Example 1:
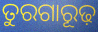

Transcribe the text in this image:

ତୁରଗାରୂଢ଼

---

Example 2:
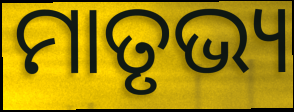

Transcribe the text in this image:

ମାତୃଭ୍ୟ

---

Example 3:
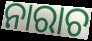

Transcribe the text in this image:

ନାରାଚ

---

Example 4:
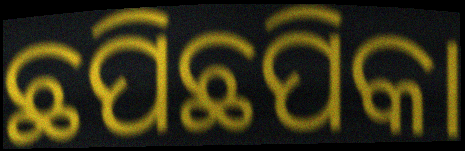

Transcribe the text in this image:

ଛପିଛପିକା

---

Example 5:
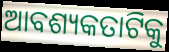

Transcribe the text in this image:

ଆବଶ୍ୟକତାଟିକୁ